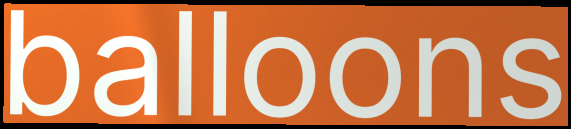
balloons